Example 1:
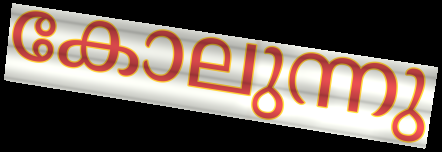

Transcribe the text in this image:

കോലുന്നു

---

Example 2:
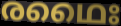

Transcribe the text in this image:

രഥൈഃ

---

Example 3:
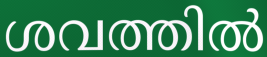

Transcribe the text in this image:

ശവത്തിൽ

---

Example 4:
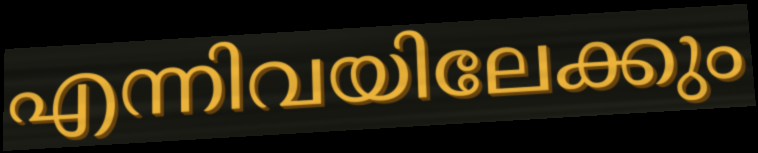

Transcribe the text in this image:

എന്നിവയിലേക്കും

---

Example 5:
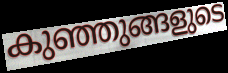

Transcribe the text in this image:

കുഞ്ഞുങ്ങളുടെ